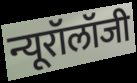
न्यूरॉलॉजी